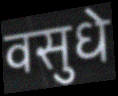
वसुधे